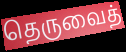
தெருவைத்